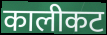
कालीकट